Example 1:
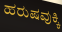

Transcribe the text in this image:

ಹರುಷವುಕ್ಕಿ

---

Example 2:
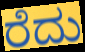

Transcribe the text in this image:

ರೆದು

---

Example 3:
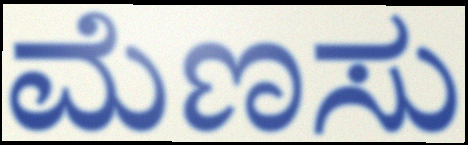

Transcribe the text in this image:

ಮೆಣಸು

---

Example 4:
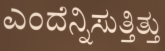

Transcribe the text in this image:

ಎಂದೆನ್ನಿಸುತ್ತಿತ್ತು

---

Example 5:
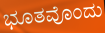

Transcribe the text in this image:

ಭೂತವೊಂದು